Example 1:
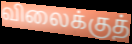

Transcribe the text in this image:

விலைக்குத்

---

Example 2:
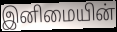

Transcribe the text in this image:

இனிமையின்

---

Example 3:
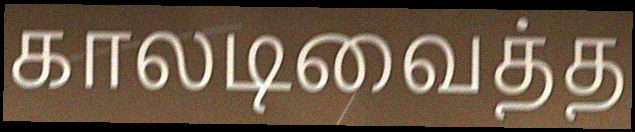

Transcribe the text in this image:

காலடிவைத்த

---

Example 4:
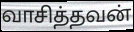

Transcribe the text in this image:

வாசித்தவன்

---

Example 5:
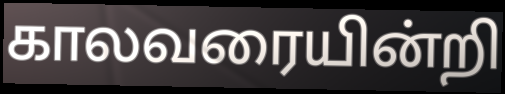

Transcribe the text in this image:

காலவரையின்றி